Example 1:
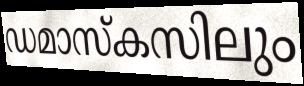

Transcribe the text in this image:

ഡമാസ്കസിലും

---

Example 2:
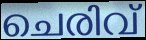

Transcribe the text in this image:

ചെരിവ്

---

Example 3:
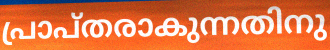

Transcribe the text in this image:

പ്രാപ്തരാകുന്നതിനു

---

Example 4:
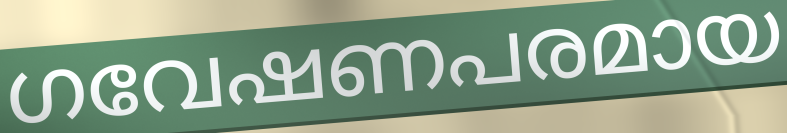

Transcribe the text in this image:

ഗവേഷണപരമായ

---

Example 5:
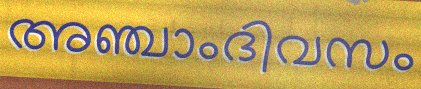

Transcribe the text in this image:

അഞ്ചാംദിവസം